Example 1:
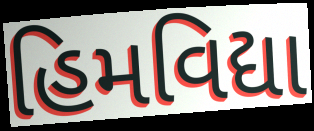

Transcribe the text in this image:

હિમવિદ્યા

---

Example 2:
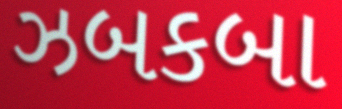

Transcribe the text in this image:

ઝબકબા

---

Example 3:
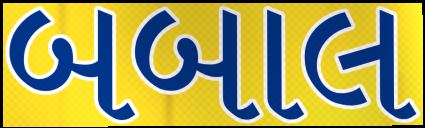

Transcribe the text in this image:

બબાલ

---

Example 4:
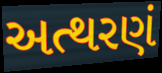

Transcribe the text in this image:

અત્થરણં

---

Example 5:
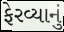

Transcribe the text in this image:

ફેરવ્યાનું